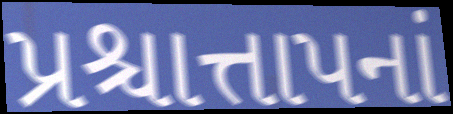
પ્રશ્ચાત્તાપનાં